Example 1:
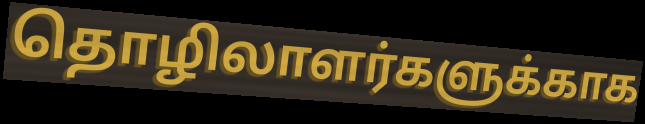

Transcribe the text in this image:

தொழிலாளர்களுக்காக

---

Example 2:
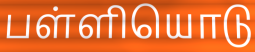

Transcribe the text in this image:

பள்ளியொடு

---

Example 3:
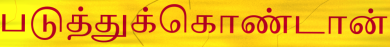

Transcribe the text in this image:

படுத்துக்கொண்டான்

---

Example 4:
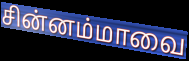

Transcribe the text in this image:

சின்னம்மாவை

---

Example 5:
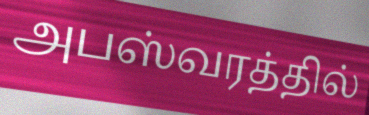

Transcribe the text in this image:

அபஸ்வரத்தில்